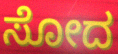
ಸೋದ